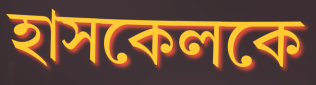
হাসকেলকে